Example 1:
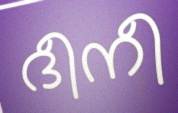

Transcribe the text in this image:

ദീനീ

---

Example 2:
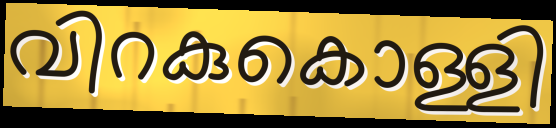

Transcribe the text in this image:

വിറകുകൊള്ളി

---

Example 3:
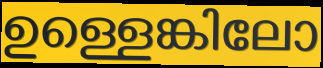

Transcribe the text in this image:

ഉള്ളെങ്കിലോ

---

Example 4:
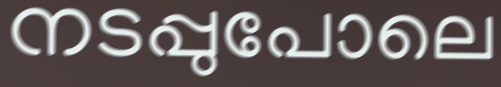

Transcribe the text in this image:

നടപ്പുപോലെ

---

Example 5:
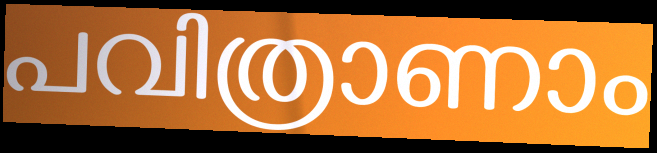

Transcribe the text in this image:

പവിത്രാണാം